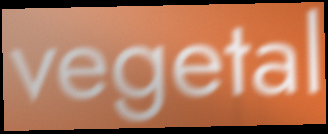
vegetal